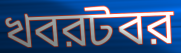
খবরটবর